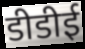
डीडीई